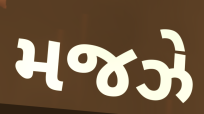
મજઝે